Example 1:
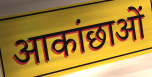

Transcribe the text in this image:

आकांछाओं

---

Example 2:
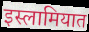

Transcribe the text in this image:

इस्लामियात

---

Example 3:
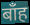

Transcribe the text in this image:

बाँह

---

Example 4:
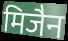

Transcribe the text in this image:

मिजैन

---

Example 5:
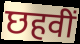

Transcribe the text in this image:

छहवीं